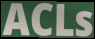
ACLs